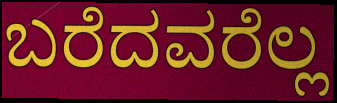
ಬರೆದವರೆಲ್ಲ